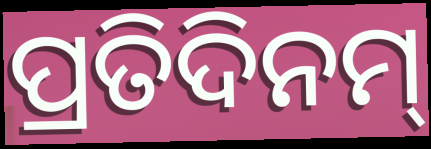
ପ୍ରତିଦିନମ୍